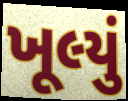
ખૂલ્યું